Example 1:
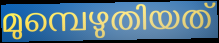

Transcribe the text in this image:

മുമ്പെഴുതിയത്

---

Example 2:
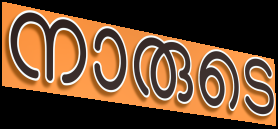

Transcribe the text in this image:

നാരുടെ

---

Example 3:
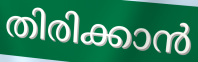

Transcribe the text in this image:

തിരിക്കാൻ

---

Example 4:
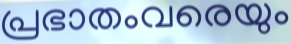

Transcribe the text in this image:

പ്രഭാതംവരെയും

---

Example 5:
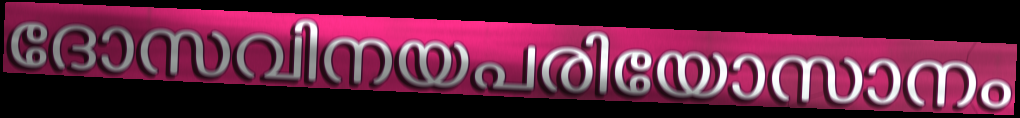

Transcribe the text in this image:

ദോസവിനയപരിയോസാനം